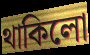
থাকিলো